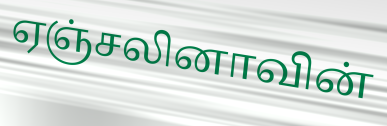
ஏஞ்சலினாவின்